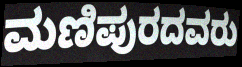
ಮಣಿಪುರದವರು